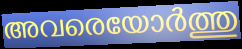
അവരെയോർത്തു